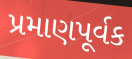
પ્રમાણપૂર્વક